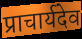
प्राचार्यदेव